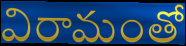
విరామంతో